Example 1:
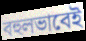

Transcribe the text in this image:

বহুলভাবেই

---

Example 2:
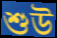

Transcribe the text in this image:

শুউ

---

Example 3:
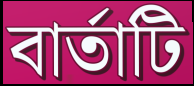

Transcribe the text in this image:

বার্তাটি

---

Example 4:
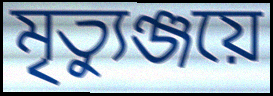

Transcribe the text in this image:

মৃত্যুঞ্জয়ে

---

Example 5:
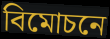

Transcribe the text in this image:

বিমোচনে